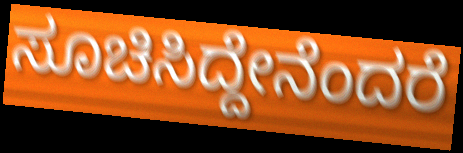
ಸೂಚಿಸಿದ್ದೇನೆಂದರೆ